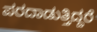
ಪರದಾಡುತ್ತಿದ್ದರೆ